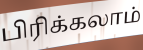
பிரிக்கலாம்